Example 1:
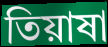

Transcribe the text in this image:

তিয়াষা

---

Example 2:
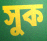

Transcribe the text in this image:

সুক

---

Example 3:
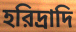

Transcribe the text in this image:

হরিদ্রাদি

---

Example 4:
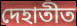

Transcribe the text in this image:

দেহাতীত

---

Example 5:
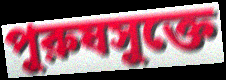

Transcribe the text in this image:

পুরুষসুক্তে